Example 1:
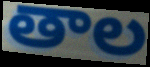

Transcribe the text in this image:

తాల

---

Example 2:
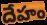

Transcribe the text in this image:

దేహం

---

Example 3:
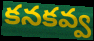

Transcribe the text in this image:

కనకవ్వ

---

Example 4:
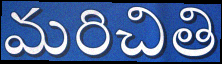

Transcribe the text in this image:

మరిచితి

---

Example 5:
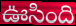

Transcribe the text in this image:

ఊసింది